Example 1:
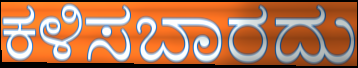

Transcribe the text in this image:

ಕಳಿಸಬಾರದು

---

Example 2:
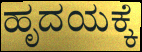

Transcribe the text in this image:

ಹೃದಯಕ್ಕೆ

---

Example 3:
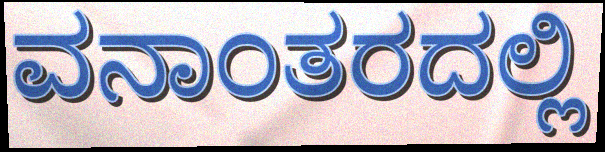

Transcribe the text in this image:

ವನಾಂತರದಲ್ಲಿ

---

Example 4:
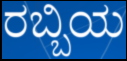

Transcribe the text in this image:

ರಬ್ಬಿಯ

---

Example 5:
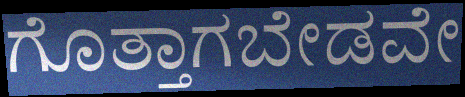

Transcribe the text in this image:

ಗೊತ್ತಾಗಬೇಡವೇ